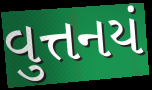
વુત્તનયં